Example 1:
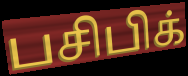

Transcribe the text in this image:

பசிபிக்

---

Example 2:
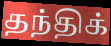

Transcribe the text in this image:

தந்திக்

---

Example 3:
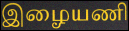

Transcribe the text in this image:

இழையணி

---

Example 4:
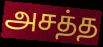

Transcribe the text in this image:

அசத்த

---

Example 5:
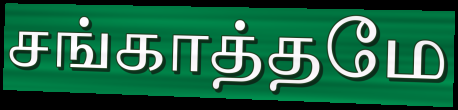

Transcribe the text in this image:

சங்காத்தமே